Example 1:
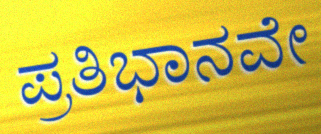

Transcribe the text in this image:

ಪ್ರತಿಭಾನವೇ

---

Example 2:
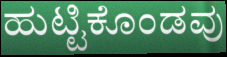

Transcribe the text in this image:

ಹುಟ್ಟಿಕೊಂಡವು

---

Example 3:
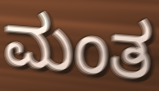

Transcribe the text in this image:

ಮಂತ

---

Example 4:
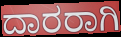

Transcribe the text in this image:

ದಾರರಾಗಿ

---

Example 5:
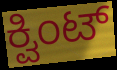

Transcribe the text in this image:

ಕ್ವಿಂಟ್